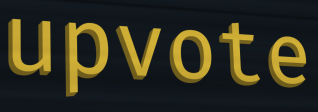
upvote